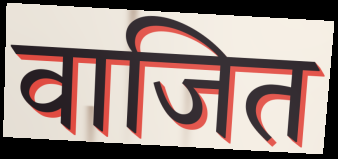
वाजित